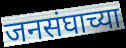
जनसंघाच्या